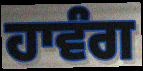
ਹਾਵੰਗ